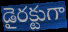
డైరక్టుగా